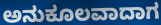
ಅನುಕೂಲವಾದಾಗ